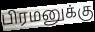
பிரமனுக்கு